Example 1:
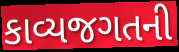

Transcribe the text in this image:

કાવ્યજગતની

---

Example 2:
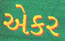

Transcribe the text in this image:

એકર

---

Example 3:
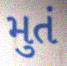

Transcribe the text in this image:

મુતં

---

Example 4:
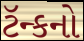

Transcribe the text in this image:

ટૅન્કનો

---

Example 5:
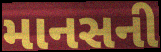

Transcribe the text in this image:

માનસની